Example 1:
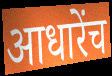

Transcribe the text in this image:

आधारेंच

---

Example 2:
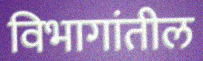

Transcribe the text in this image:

विभागांतील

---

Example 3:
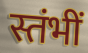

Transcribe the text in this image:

स्तंभीं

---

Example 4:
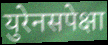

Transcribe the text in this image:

युरेनसपेक्षा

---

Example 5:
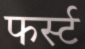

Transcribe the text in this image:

फर्स्ट